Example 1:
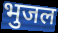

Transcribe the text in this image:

भुजल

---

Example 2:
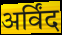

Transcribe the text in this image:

अर्विंद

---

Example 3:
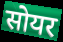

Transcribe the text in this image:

सोयर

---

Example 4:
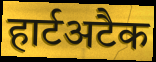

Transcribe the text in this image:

हार्टअटैक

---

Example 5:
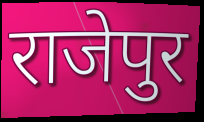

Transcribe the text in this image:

राजेपुर